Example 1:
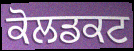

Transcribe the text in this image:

ਕੋਲਡਕਟ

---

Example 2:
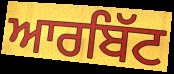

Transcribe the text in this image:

ਆਰਬਿੱਟ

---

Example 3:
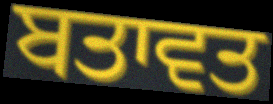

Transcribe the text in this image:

ਬਤਾਵਤ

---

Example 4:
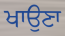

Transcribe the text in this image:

ਖਾਉਣਾ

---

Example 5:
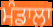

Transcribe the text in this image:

ਮੰਡਾਲਾ